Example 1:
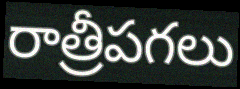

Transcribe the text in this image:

రాత్రీపగలు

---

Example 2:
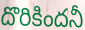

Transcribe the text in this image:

దొరికిందనీ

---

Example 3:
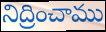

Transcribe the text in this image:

నిద్రించాము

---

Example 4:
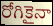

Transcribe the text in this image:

రోగికైనా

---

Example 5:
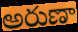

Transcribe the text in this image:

అరుణా